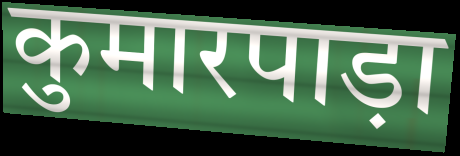
कुमारपाड़ा